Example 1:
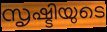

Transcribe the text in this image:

സൃഷ്ടിയുടെ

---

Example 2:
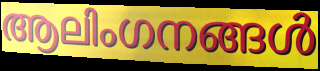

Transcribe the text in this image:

ആലിംഗനങ്ങൾ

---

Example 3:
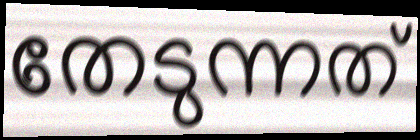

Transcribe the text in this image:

തേടുന്നത്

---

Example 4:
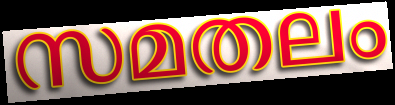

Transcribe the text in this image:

സമതലം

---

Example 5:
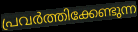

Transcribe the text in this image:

പ്രവർത്തിക്കേണ്ടുന്ന